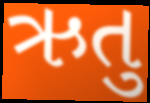
ઋતુ